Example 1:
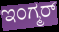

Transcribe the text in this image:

ಇಂಗ್ಮರ್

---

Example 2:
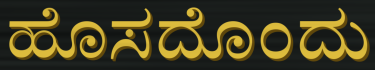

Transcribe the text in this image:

ಹೊಸದೊಂದು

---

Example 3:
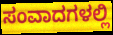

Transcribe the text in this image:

ಸಂವಾದಗಳಲ್ಲಿ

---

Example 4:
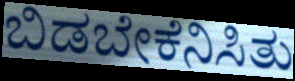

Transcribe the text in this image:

ಬಿಡಬೇಕೆನಿಸಿತು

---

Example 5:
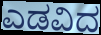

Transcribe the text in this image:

ಎಡವಿದ